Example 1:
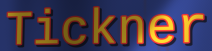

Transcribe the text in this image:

Tickner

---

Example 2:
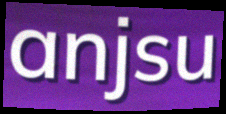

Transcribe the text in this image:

anjsu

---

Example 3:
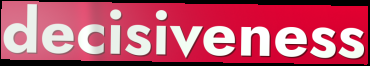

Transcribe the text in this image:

decisiveness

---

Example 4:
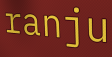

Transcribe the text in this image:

ranju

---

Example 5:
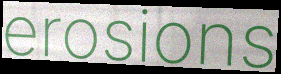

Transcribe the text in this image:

erosions